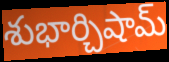
శుభార్చిషామ్